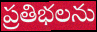
ప్రతిభలను